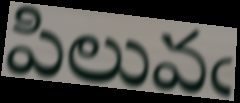
పిలువఁ